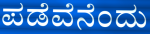
ಪಡೆವೆನೆಂದು